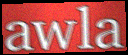
awla